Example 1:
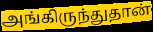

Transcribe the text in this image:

அங்கிருந்துதான்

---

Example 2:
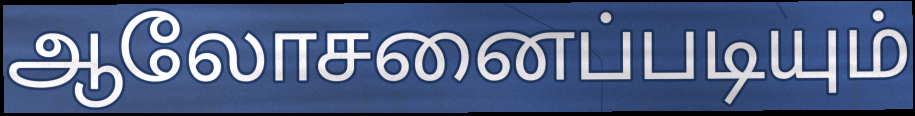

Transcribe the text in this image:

ஆலோசனைப்படியும்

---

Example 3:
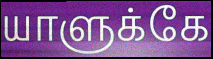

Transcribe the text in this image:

யாளுக்கே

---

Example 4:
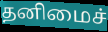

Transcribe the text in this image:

தனிமைச்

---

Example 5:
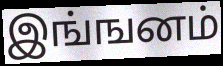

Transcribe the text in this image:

இங்ஙனம்